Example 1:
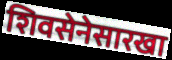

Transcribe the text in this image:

शिवसेनेसारखा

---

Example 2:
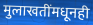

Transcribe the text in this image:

मुलाखतींमधूनही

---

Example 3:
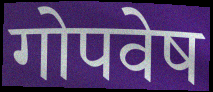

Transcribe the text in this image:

गोपवेष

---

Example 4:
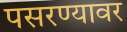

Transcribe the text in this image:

पसरण्यावर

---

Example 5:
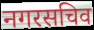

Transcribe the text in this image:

नगरसचिव